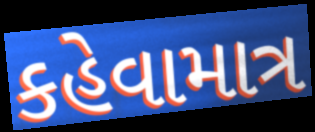
કહેવામાત્ર